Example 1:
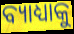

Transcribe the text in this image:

ବ୍ୟାଧ୍ୟାକୁ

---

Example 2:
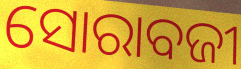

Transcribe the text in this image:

ସୋରାବଜୀ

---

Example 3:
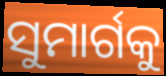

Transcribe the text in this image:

ସୁମାର୍ଗକୁ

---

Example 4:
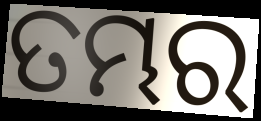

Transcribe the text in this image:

ତମ୍ଭର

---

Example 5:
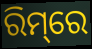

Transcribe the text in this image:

ରିମ୍‌ରେ